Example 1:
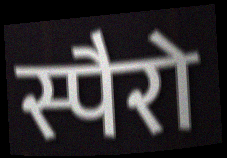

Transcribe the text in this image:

स्पैरो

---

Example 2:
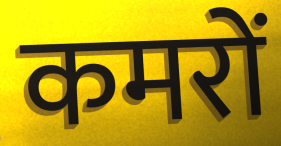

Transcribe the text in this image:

कमरों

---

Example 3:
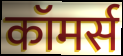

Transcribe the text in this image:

कॉमर्स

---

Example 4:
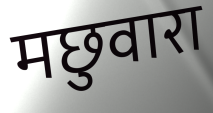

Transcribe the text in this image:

मछुवारा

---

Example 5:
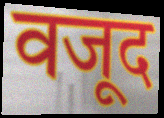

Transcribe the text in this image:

वजूद